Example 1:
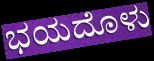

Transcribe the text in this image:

ಭಯದೊಳು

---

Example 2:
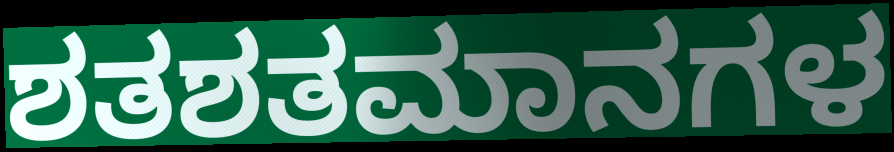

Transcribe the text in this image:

ಶತಶತಮಾನಗಳ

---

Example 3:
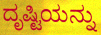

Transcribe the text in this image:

ದೃಷ್ಟಿಯನ್ನು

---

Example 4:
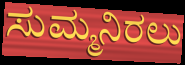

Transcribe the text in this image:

ಸುಮ್ಮನಿರಲು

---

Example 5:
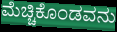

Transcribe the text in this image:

ಮೆಚ್ಚಿಕೊಂಡವನು